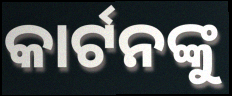
କାର୍ଟନଙ୍କୁ